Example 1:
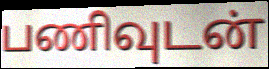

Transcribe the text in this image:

பணிவுடன்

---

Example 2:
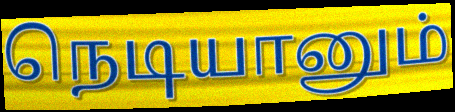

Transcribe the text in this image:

நெடியானும்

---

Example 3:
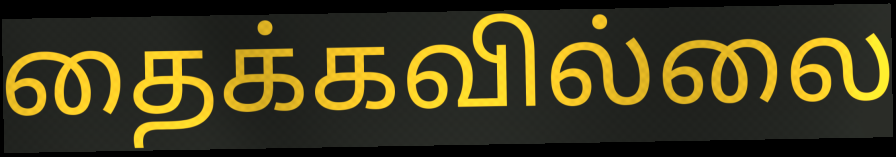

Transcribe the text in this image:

தைக்கவில்லை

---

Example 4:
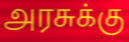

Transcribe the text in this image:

அரசுக்கு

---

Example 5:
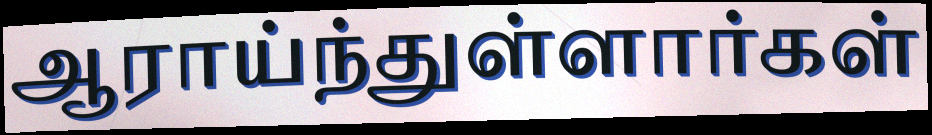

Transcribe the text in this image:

ஆராய்ந்துள்ளார்கள்